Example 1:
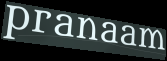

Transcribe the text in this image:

pranaam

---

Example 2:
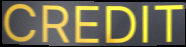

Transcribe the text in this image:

CREDIT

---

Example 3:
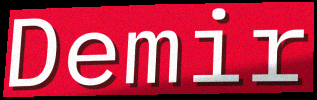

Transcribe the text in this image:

Demir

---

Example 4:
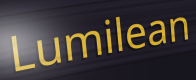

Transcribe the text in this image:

Lumilean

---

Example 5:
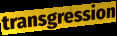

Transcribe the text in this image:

transgression